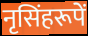
नृसिंहरूपें